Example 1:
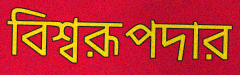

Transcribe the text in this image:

বিশ্বরূপদার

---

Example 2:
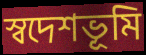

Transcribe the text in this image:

স্বদেশভূমি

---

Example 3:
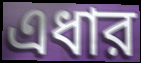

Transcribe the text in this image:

এধার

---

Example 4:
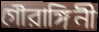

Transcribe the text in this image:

গৌরাঙ্গিনী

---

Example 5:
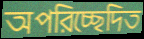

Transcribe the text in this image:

অপরিচ্ছেদিত